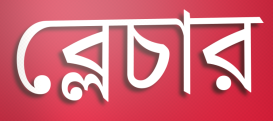
ব্লেচার